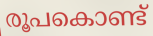
രൂപകൊണ്ട്